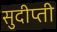
सुदीप्ती